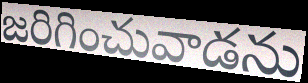
జరిగించువాడను